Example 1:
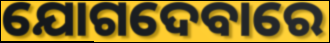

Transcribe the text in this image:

ଯୋଗଦେବାରେ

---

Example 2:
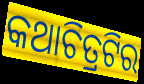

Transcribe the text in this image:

କଥାଚିତ୍ରଟିର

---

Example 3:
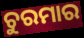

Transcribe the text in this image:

ଚୁରମାର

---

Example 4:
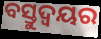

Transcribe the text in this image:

ବସ୍ତୁଦ୍ୱୟର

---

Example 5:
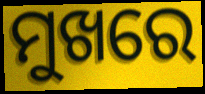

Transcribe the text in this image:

ମୁଖରେ